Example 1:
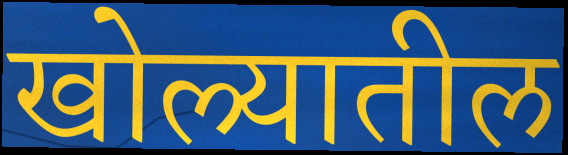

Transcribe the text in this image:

खोल्यातील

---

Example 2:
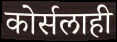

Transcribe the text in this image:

कोर्सलाही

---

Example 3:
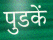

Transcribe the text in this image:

पुडकें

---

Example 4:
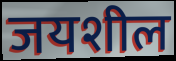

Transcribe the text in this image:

जयशील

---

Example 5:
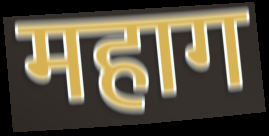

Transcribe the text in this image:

महाग